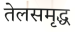
तेलसमृद्ध